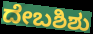
ದೇಬಶಿಶು